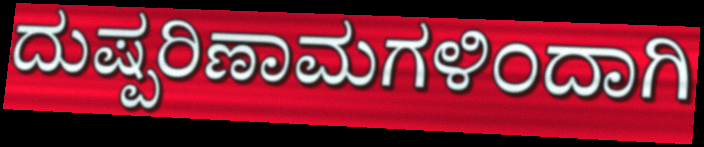
ದುಷ್ಪರಿಣಾಮಗಳಿಂದಾಗಿ